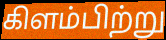
கிளம்பிற்று